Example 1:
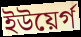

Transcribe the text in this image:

ইউয়ের্গ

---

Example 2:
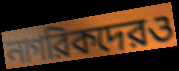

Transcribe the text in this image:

নাগরিকদেরও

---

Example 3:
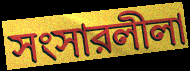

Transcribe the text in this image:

সংসারলীলা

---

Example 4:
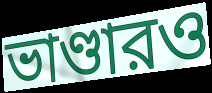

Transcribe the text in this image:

ভাণ্ডারও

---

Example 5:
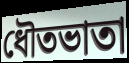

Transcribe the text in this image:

ধৌতভাতা